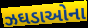
ઝઘડાઓના